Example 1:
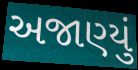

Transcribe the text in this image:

અજાણ્યું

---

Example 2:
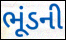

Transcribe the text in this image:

ભૂંડની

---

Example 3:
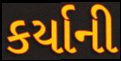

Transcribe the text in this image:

કર્યાની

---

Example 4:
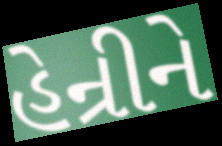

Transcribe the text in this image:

હેન્રીને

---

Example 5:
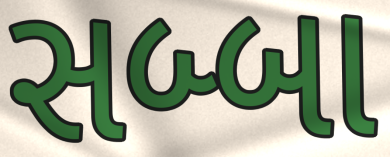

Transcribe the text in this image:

સબ્બા